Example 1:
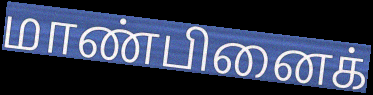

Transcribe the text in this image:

மாண்பினைக்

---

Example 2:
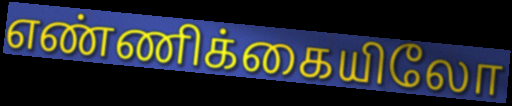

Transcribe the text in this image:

எண்ணிக்கையிலோ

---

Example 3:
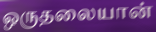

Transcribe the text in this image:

ஒருதலையான்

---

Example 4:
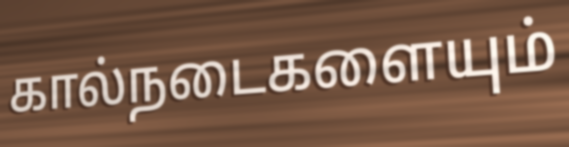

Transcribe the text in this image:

கால்நடைகளையும்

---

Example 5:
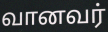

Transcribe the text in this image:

வானவர்